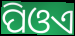
ପିଓଏ